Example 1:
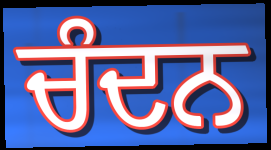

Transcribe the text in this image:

ਚੰਦਨ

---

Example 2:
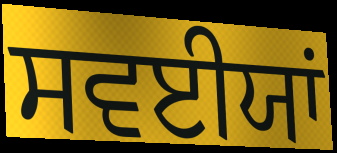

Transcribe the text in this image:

ਸਵਈਯਾਂ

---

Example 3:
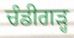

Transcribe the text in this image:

ਚੰਡੀਗਡ਼੍ਹ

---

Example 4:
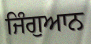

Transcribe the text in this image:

ਜਿੰਗੁਆਨ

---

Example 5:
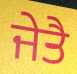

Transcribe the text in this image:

ਜੇਤੈ